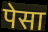
पेसा